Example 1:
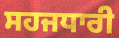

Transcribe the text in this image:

ਸਹਜਧਾਰੀ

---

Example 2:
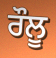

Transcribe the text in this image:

ਰੌਲੂ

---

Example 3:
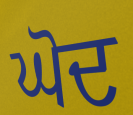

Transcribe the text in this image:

ਘੋਦ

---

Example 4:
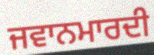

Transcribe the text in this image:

ਜਵਾਨਮਾਰਦੀ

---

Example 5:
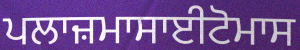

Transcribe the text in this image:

ਪਲਾਜ਼ਮਾਸਾਈਟੋਮਾਸ